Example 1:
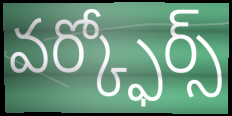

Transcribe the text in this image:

వర్క్ఫోర్స్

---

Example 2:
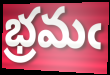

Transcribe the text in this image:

భ్రమఁ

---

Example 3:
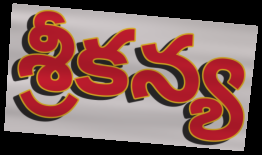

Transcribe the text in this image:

శ్రీకన్య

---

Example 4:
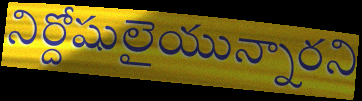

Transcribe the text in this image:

నిర్దోషులైయున్నారని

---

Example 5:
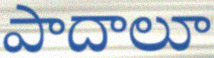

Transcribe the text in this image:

పాదాలూ